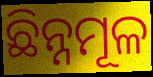
ଛିନ୍ନମୂଳ